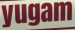
yugam